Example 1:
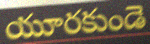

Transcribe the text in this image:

యూరకుండె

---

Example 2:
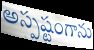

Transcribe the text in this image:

అస్పష్టంగాను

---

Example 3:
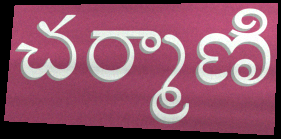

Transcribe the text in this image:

చర్మాణి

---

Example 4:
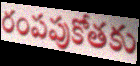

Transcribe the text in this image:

రంపపుకోతకు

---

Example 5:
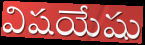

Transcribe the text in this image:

విషయేషు